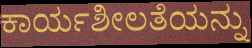
ಕಾರ್ಯಶೀಲತೆಯನ್ನು